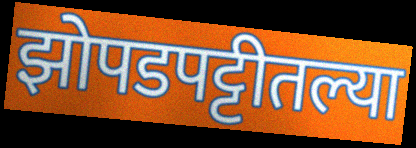
झोपडपट्टीतल्या